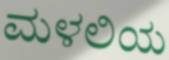
ಮಳಲಿಯ